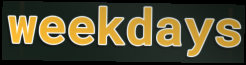
weekdays